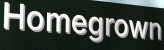
Homegrown